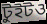
টুইটও